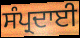
ਸੰਪ੍ਰਦਾਈ